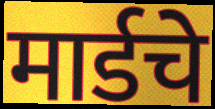
मार्डचे